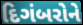
દિગંબરોને